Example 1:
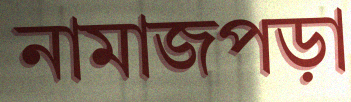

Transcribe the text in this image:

নামাজপড়া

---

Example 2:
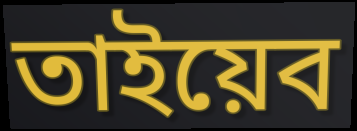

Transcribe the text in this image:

তাইয়েব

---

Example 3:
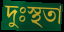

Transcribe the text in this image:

দুঃস্থতা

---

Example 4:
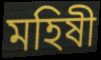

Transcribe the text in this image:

মহিষী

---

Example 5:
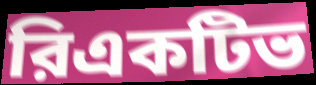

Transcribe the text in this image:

রিএকটিভ